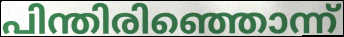
പിന്തിരിഞ്ഞൊന്ന്